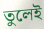
তুলেই